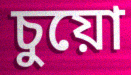
চুয়ো